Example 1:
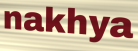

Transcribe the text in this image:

nakhya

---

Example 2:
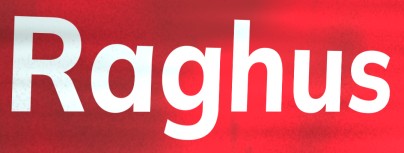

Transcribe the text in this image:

Raghus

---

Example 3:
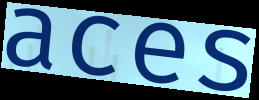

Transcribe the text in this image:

aces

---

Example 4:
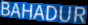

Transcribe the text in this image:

BAHADUR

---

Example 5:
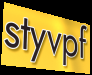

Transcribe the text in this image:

styvpf